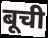
बूची